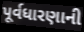
પૂર્વધારણાની